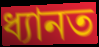
ধ্যানত